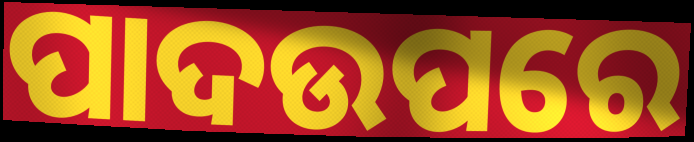
ପାଦଉପରେ